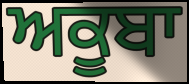
ਅਕੂਬਾ